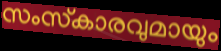
സംസ്‌കാരവുമായും